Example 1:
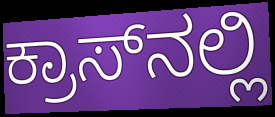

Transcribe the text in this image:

ಕ್ರಾಸ್‌ನಲ್ಲಿ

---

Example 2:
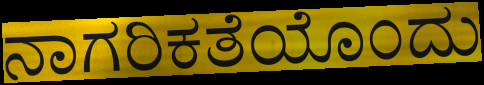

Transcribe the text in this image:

ನಾಗರಿಕತೆಯೊಂದು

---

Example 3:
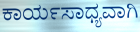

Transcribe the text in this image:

ಕಾರ್ಯಸಾಧ್ಯವಾಗಿ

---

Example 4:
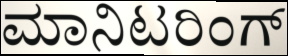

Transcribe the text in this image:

ಮಾನಿಟರಿಂಗ್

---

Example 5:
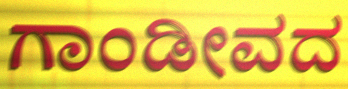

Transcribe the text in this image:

ಗಾಂಡೀವದ